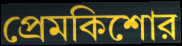
প্রেমকিশোর